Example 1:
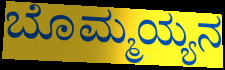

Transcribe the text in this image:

ಬೊಮ್ಮಯ್ಯನ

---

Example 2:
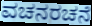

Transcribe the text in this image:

ವಚನರಚನೆ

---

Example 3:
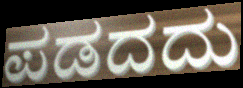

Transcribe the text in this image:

ಪಡದದು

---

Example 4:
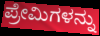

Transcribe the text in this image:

ಪ್ರೇಮಿಗಳನ್ನು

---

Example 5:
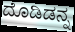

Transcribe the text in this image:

ದೊಡಿಡನ್ನ